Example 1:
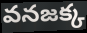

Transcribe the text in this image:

వనజక్క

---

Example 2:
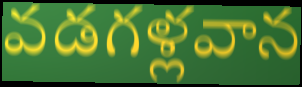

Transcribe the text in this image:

వడగళ్లవాన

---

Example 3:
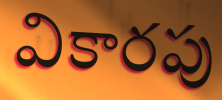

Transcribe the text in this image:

వికారపు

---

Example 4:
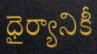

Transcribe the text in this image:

ధైర్యానికీ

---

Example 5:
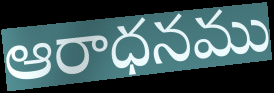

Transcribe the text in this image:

ఆరాధనము